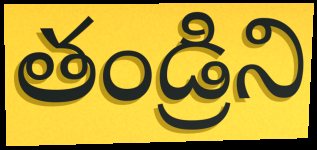
తండ్రిని